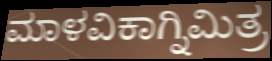
ಮಾಳವಿಕಾಗ್ನಿಮಿತ್ರ